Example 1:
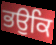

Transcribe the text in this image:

ਭਉਕਿ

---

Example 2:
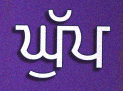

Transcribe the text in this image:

ਘੁੱਪ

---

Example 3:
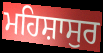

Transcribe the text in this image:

ਮਹਿਸ਼ਾਸੁਰ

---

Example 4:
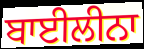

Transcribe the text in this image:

ਬਾਈਲੀਨਾ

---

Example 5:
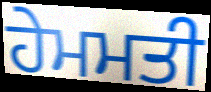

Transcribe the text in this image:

ਹੇਮਮਤੀ